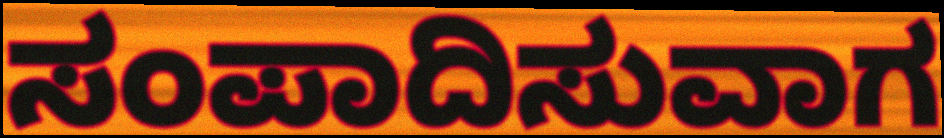
ಸಂಪಾದಿಸುವಾಗ